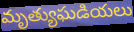
మృత్యుఘడియలు